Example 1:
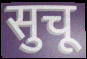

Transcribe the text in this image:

सुचू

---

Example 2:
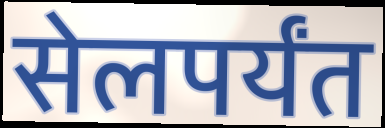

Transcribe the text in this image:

सेलपर्यंत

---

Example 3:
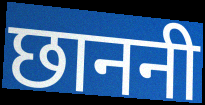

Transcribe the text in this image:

छाननी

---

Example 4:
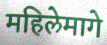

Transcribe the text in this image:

महिलेमागे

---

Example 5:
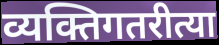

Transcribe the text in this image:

व्यक्तिगतरीत्या